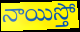
నాయిస్తో